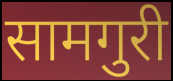
सामगुरी